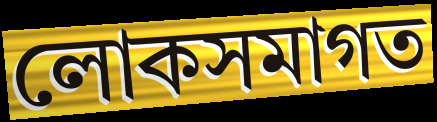
লোকসমাগত